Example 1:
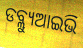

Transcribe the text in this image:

ଡବ୍ଲ୍ୟୁଆଇଭି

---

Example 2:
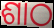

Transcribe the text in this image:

ଶାଠ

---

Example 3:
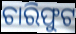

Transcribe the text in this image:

ଚାରିଫୁଟ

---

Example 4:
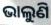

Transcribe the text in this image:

ଭାଲୁଣି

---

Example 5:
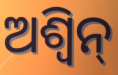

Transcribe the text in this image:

ଅଶ୍ବିନ୍